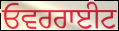
ਓਵਰਰਾਈਟ